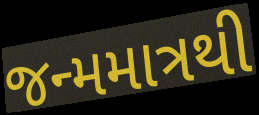
જન્મમાત્રથી